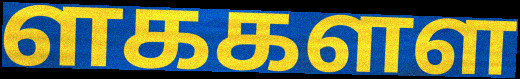
ளககளள